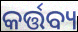
କର୍ତ୍ତବ୍ୟ